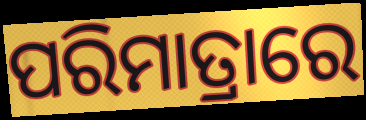
ପରିମାତ୍ରାରେ